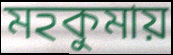
মহকুমায়